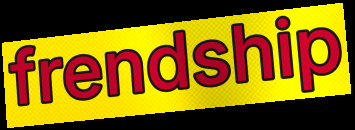
frendship